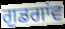
ਗੁਡਗਾਂਵ